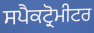
ਸਪੈਕਟ੍ਰੋਮੀਟਰ